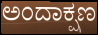
ಅಂದಾಕ್ಷಣ